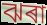
ঝৰা